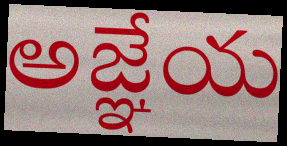
అజ్ఞేయ